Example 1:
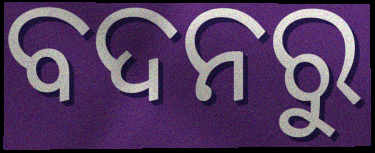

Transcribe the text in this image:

ବଦନରୁ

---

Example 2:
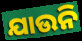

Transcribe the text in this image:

ଯାଉନି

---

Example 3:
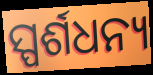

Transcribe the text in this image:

ସ୍ପର୍ଶଧନ୍ୟ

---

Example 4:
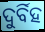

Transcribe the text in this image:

ଦୁର୍ବିହ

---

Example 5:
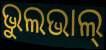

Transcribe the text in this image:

ଭୁଲଭାଲ୍